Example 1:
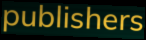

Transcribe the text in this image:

publishers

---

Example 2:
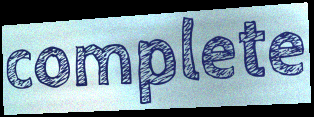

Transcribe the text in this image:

complete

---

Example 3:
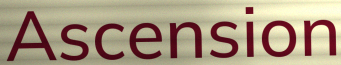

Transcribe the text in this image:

Ascension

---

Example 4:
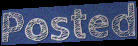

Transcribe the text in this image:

Posted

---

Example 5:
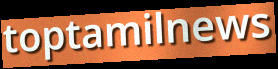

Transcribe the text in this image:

toptamilnews